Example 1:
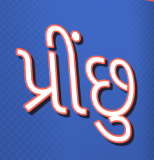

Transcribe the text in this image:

પ્રીંછુ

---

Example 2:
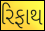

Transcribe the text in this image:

રિફાથ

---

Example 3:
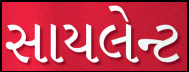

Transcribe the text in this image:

સાયલેન્ટ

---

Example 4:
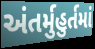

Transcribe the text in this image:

અંતર્મુહુર્તમાં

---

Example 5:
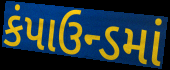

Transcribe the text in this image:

કંપાઉન્ડમાં